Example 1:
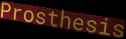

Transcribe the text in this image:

Prosthesis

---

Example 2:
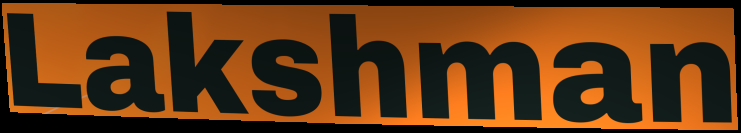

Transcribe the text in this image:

Lakshman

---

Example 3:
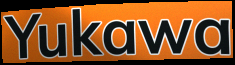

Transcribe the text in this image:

Yukawa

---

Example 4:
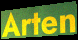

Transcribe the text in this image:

Arten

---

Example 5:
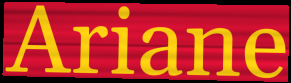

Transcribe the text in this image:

Ariane